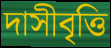
দাসীবৃত্তি